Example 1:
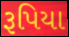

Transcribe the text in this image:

રૂપિયા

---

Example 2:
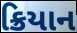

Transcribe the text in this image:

ક્રિયાન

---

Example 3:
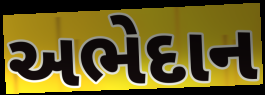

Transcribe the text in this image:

અભેદાન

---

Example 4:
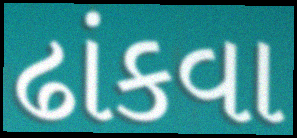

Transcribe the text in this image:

ઢાંકવા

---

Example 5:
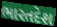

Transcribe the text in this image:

ભારતદેશ